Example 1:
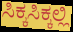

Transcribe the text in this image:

ಸಿಕ್ಕಸಿಕ್ಕಲ್ಲಿ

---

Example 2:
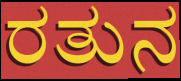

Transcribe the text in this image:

ರತುನ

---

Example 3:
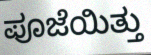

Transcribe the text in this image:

ಪೂಜೆಯಿತ್ತು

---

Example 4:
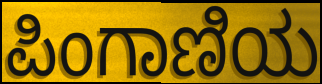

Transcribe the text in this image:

ಪಿಂಗಾಣಿಯ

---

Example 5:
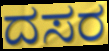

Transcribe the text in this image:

ದಸರ